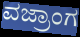
ವಜ್ರಾಂಗ